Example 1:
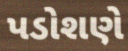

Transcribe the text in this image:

પડોશણે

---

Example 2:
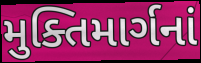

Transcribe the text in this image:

મુક્તિમાર્ગનાં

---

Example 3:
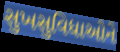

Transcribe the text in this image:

સુખસુવિધાઓને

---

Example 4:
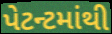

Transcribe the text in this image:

પેટન્ટમાંથી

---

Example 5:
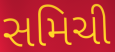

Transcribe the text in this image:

સમિચી